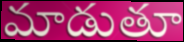
మాడుతూ